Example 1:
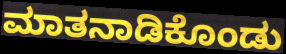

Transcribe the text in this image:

ಮಾತನಾಡಿಕೊಂಡು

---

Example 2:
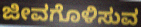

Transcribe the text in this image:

ಜೀವಗೊಳಿಸುವ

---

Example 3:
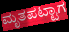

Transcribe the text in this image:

ಮೃತಪಟ್ಟಾಗ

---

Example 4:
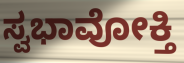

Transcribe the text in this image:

ಸ್ವಭಾವೋಕ್ತಿ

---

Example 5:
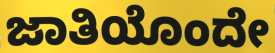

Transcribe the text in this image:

ಜಾತಿಯೊಂದೇ